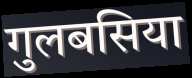
गुलबसिया